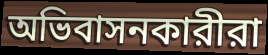
অভিবাসনকারীরা